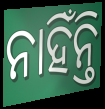
ନାହିଁନ୍ତି